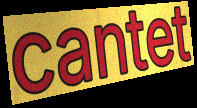
cantet